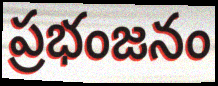
ప్రభంజనం